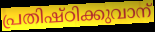
പ്രതിഷ്ഠിക്കുവാന്